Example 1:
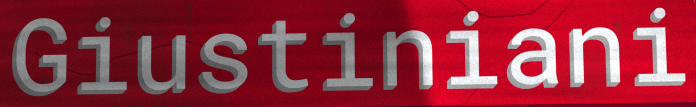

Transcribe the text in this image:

Giustiniani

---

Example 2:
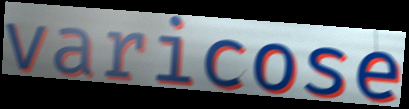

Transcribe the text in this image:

varicose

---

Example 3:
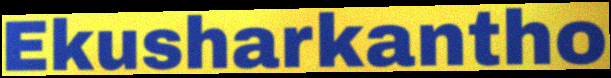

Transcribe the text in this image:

Ekusharkantho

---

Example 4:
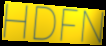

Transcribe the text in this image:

HDFN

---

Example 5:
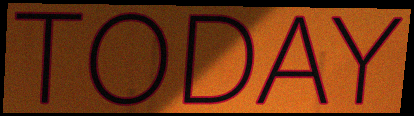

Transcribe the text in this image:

TODAY